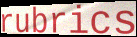
rubrics